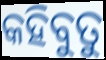
କହିବୁତୁ